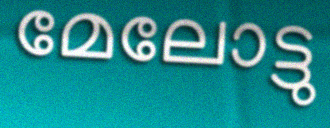
മേലോട്ടു